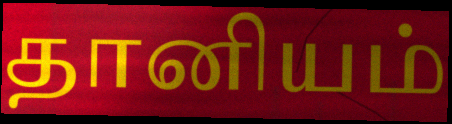
தானியம்